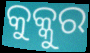
କୁକ୍କୁର